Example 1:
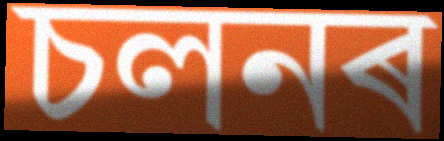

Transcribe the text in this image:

চলনৰ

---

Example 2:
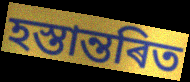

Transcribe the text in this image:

হস্তান্তৰিত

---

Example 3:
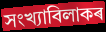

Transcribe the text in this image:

সংখ্যাবিলাকৰ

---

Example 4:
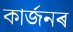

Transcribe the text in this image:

কাৰ্জনৰ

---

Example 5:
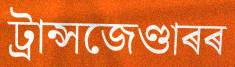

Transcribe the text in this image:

ট্ৰান্সজেণ্ডাৰৰ